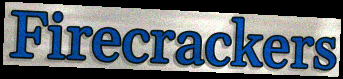
Firecrackers